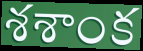
శశాంక